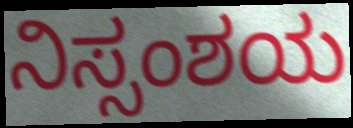
ನಿಸ್ಸಂಶಯ